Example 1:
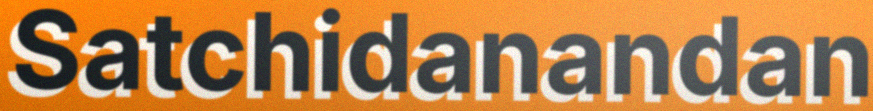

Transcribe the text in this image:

Satchidanandan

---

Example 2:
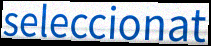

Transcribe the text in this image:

seleccionat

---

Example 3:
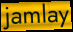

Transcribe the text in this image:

jamlay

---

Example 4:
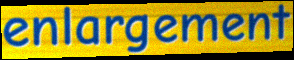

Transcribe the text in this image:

enlargement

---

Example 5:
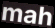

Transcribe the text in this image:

mah